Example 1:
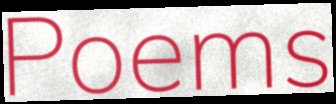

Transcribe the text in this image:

Poems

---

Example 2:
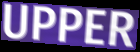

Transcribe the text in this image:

UPPER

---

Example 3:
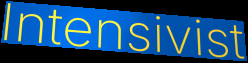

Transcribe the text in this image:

Intensivist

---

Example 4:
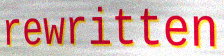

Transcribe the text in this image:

rewritten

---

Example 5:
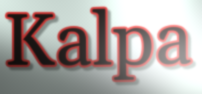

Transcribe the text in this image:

Kalpa